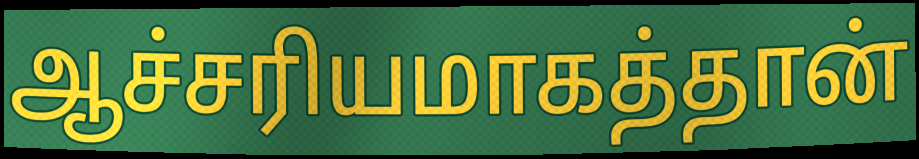
ஆச்சரியமாகத்தான்